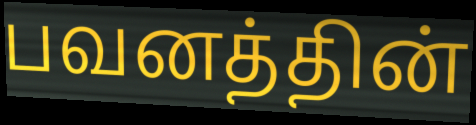
பவனத்தின்